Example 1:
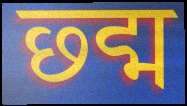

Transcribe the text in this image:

छ्द्म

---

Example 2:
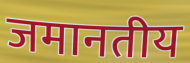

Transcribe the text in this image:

जमानतीय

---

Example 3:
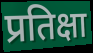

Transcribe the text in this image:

प्रतिक्षा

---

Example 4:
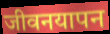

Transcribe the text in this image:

जीवनयापन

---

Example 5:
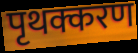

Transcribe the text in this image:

पृथक्करण